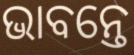
ଭାବନ୍ତେ